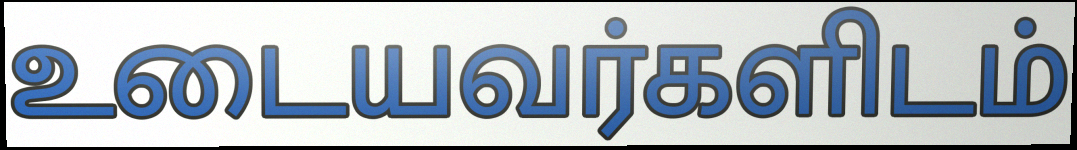
உடையவர்களிடம்